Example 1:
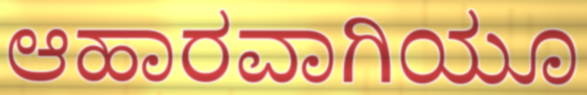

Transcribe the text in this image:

ಆಹಾರವಾಗಿಯೂ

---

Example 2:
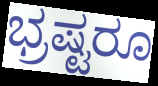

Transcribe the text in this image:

ಭ್ರಷ್ಟರೂ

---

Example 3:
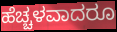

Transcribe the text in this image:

ಹೆಚ್ಚಳವಾದರೂ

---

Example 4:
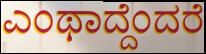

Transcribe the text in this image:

ಎಂಥಾದ್ದೆಂದರೆ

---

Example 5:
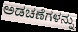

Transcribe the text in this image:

ಅಡಚಣೆಗಳನ್ನು